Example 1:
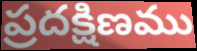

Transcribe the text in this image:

ప్రదక్షిణము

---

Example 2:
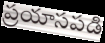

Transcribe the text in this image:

ప్రయాసపడి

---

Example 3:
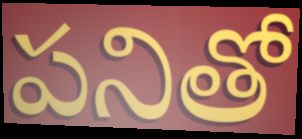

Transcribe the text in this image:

పనితో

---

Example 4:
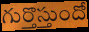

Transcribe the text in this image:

గుర్తొస్తుందో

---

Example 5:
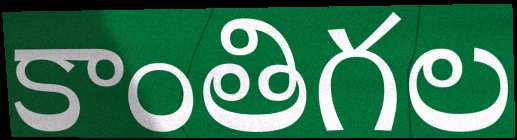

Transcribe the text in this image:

కాంతిగల